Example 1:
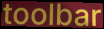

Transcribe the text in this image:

toolbar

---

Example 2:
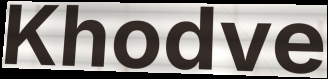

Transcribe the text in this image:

Khodve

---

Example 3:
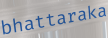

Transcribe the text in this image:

bhattaraka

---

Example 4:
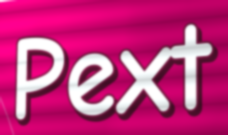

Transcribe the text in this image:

Pext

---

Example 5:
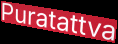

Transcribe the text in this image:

Puratattva